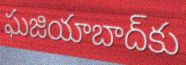
ఘజియాబాద్‌కు